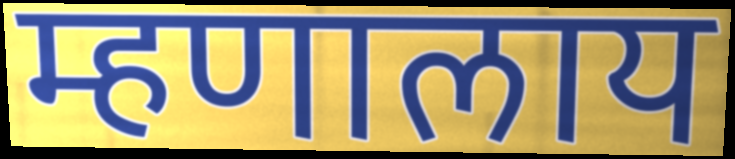
म्हणालाय